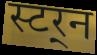
स्टर्न